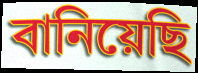
বানিয়েছি